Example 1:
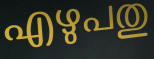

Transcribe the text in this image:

എഴുപതു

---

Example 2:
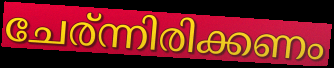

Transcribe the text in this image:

ചേര്ന്നിരിക്കണം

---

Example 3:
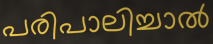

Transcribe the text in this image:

പരിപാലിച്ചാൽ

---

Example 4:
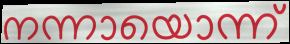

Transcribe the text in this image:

നന്നായൊന്ന്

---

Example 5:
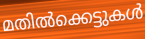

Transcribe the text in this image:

മതിൽക്കെട്ടുകൾ